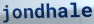
jondhale